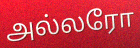
அல்லரோ